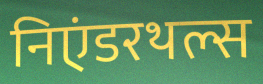
निएंडरथल्स